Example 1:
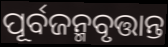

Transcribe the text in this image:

ପୂର୍ବଜନ୍ମବୃତ୍ତାନ୍ତ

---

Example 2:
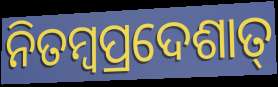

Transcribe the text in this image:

ନିତମ୍ବପ୍ରଦେଶାତ୍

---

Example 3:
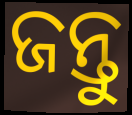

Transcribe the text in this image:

ଜନ୍ତୁ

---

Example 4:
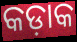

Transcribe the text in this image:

କଡ଼ାକ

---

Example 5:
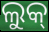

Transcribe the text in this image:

ଲୁକ୍